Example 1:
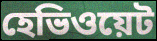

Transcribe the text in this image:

হেভিওয়েট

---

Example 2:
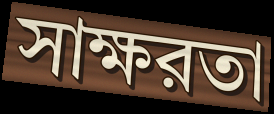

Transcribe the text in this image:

সাক্ষরতা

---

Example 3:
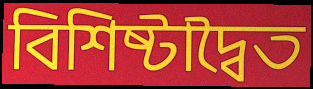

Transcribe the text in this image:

বিশিষ্টাদ্বৈত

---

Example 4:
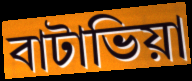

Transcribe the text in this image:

বাটাভিয়া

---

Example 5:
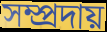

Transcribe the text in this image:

সম্প্রদায়